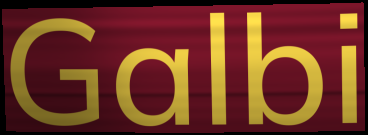
Galbi